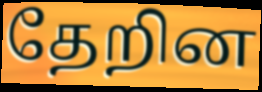
தேறின